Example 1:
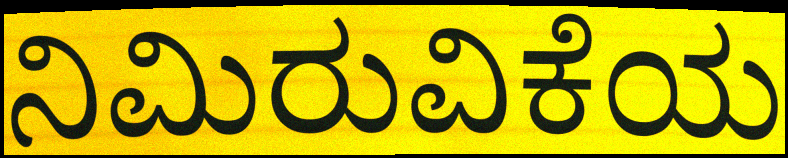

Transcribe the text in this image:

ನಿಮಿರುವಿಕೆಯ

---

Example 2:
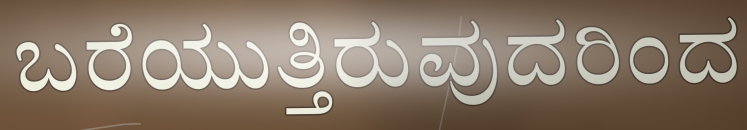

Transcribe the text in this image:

ಬರೆಯುತ್ತಿರುವುದರಿಂದ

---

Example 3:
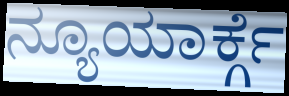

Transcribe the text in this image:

ನ್ಯೂಯಾರ್ಕ್ಗೆ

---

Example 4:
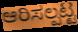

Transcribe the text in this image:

ಆರಿಸಲ್ಪಟ್ಟ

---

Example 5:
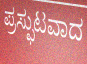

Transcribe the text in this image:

ಪ್ರಸ್ಫುಟವಾದ